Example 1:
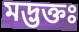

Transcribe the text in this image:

মদ্ভক্তঃ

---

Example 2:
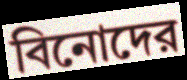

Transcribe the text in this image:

বিনোদের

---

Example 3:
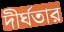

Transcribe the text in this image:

দীর্ঘতার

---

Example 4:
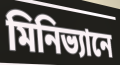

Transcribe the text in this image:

মিনিভ্যানে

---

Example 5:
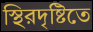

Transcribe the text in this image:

স্থিরদৃষ্টিতে